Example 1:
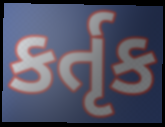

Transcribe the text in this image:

કર્તૃક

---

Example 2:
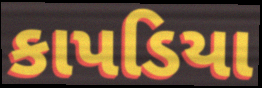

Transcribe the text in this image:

કાપડિયા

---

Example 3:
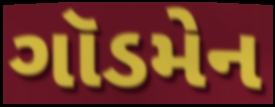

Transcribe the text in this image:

ગૉડમેન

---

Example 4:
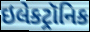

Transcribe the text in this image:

ઇલેકટ્રૉનિક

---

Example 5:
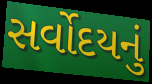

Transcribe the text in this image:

સર્વોદયનું